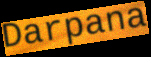
Darpana